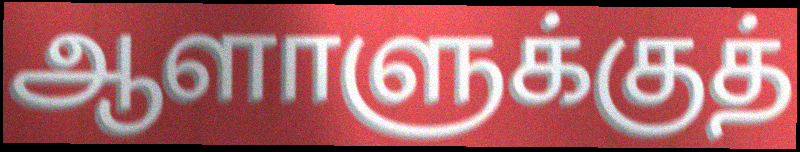
ஆளாளுக்குத்